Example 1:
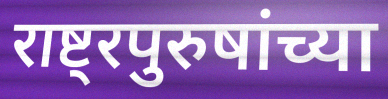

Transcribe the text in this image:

राष्ट्रपुरुषांच्या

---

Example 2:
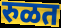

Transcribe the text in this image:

रुळत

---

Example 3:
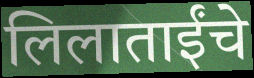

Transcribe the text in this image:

लिलाताईंचे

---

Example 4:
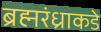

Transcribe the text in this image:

ब्रह्मरंध्राकडे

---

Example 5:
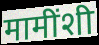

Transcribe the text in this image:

मामींशी